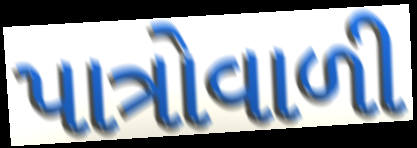
પાત્રોવાળી